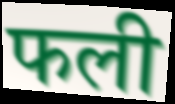
फली